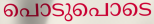
പൊടുപൊടെ